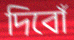
দিবোঁ